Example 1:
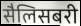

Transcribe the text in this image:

सैलिसबरी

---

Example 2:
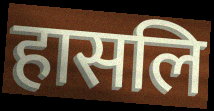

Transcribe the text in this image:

हासलि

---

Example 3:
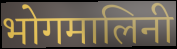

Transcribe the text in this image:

भोगमालिनी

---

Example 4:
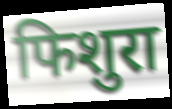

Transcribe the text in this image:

फिशुरा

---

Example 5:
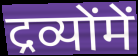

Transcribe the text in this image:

द्रव्योंमें